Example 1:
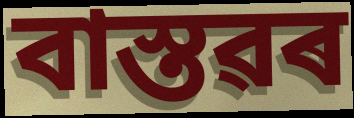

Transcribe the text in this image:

বাস্তৱৰ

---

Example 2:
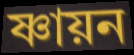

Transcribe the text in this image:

ষ্ণায়ন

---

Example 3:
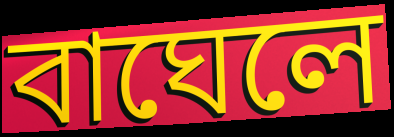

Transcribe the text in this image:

বাঘেলে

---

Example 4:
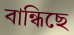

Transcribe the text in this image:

বান্ধিছে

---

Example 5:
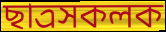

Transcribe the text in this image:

ছাত্ৰসকলক